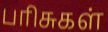
பரிசுகள்